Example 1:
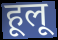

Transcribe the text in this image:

हूलू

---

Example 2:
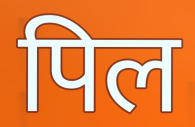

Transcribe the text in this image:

पिल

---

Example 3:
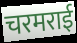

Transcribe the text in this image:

चरमराई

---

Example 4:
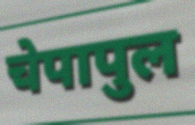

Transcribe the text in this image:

चेपापुल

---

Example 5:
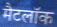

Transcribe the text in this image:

मैटलॉक